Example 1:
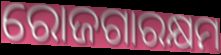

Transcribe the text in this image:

ରୋଜଗାରକ୍ଷମ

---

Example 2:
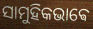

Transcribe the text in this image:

ସାମୁହିକଭାଵେ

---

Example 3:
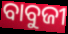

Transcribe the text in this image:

ବାବୁଜୀ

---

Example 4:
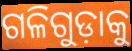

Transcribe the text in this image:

ଗଳିଗୁଡ଼ାକୁ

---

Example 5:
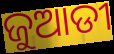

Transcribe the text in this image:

ଜୁଆଡୀ